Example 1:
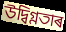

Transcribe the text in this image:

উদ্বিগ্নতাৰ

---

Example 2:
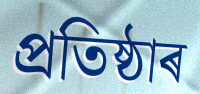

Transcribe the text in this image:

প্ৰতিষ্ঠাৰ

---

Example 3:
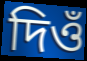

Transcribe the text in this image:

দিওঁ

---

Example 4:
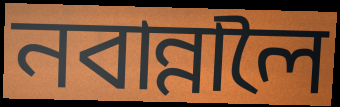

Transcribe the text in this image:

নবান্নালৈ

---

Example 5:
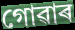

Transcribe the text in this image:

গোৱাৰ